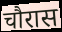
चौरास